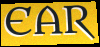
EAR